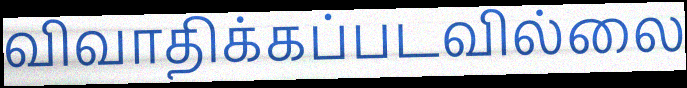
விவாதிக்கப்படவில்லை